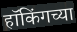
हॉकिंगच्या